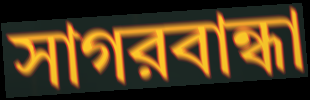
সাগরবান্ধা